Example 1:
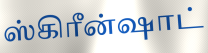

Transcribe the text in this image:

ஸ்கிரீன்ஷாட்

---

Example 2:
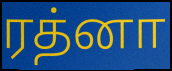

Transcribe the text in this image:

ரத்னா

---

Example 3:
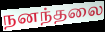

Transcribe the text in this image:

நனந்தலை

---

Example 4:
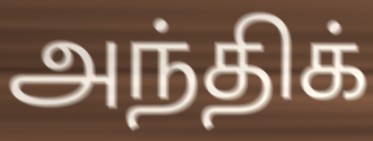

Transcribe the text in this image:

அந்திக்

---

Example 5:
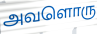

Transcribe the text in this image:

அவளொரு